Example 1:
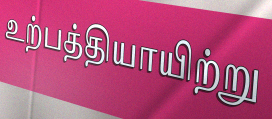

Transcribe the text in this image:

உற்பத்தியாயிற்று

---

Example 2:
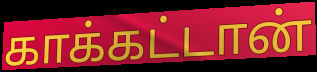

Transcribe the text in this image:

காக்கட்டான்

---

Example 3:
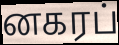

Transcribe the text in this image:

னகரப்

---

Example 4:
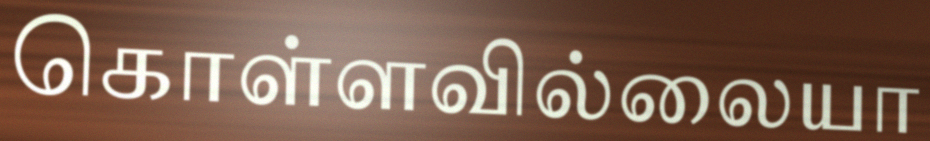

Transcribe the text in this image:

கொள்ளவில்லையா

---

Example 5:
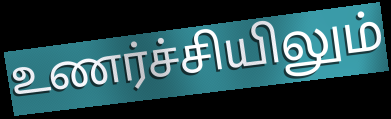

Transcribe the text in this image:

உணர்ச்சியிலும்